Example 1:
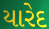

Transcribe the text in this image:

યારેદ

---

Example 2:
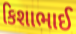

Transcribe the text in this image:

કિશાભાઈ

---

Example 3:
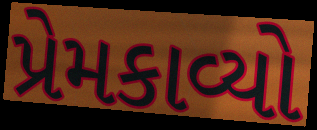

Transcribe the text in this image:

પ્રેમકાવ્યો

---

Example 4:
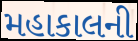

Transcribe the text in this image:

મહાકાલની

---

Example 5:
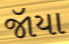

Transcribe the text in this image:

જૉયા